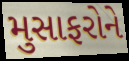
મુસાફરોને